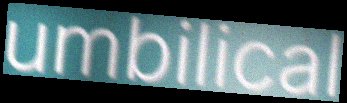
umbilical